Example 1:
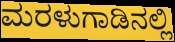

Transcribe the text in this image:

ಮರಳುಗಾಡಿನಲ್ಲಿ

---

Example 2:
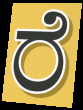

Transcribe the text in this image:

ರೆ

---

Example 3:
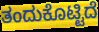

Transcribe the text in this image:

ತಂದುಕೊಟ್ಟಿದೆ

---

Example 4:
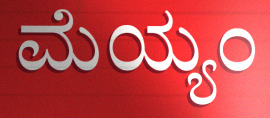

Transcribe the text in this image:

ಮೆಯ್ಯಂ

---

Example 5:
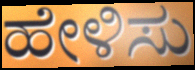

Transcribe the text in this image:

ಹೇಳಿಸು